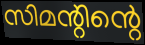
സിമന്റിന്റെ